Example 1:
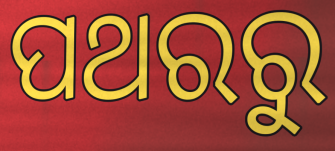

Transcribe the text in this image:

ପଥରରୁ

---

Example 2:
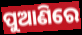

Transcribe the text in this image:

ପୁଆଣିରେ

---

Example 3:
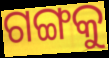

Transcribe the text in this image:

ଗଙ୍ଗକୁ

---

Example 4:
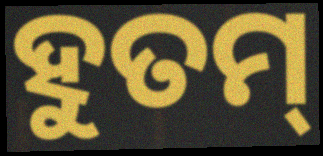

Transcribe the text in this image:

ହୁତମ୍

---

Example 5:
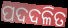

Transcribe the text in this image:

ପଦଦଳିତ